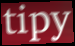
tipy